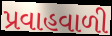
પ્રવાહવાળી